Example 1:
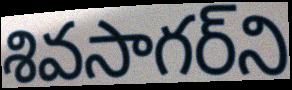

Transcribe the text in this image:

శివసాగర్‌ని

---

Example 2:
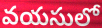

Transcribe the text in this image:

వయసులో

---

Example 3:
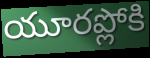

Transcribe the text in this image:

యూరప్లోకి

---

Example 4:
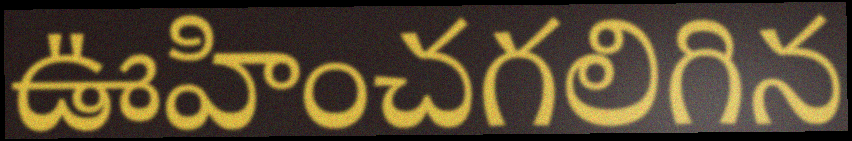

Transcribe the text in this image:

ఊహించగలిగిన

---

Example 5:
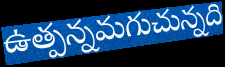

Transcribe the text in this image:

ఉత్పన్నమగుచున్నది